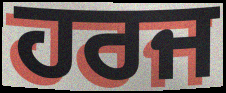
ਹਰਜ